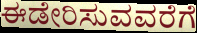
ಈಡೇರಿಸುವವರೆಗೆ